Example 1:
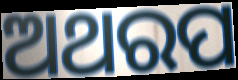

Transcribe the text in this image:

ଅଥରପ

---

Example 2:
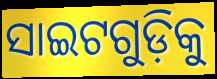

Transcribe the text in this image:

ସାଇଟଗୁଡ଼ିକୁ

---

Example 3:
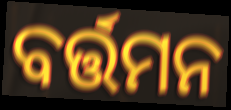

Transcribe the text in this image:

ବର୍ତ୍ତମନ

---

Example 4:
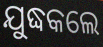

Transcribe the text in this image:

ଯୁଦ୍ଧକଲେ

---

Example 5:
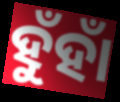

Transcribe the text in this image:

ହୁଁହାଁ